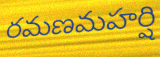
రమణమహర్షి